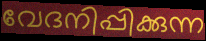
വേദനിപ്പിക്കുന്ന